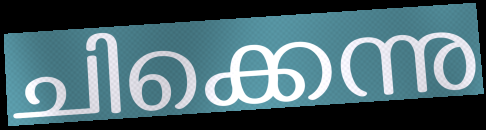
ചിക്കെന്നു